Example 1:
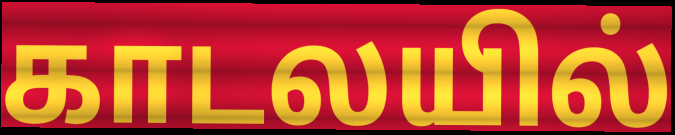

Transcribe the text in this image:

காடலயில்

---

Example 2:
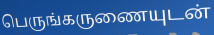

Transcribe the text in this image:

பெருங்கருணையுடன்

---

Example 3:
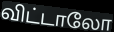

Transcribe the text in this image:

விட்டாலோ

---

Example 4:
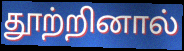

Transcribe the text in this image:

தூற்றினால்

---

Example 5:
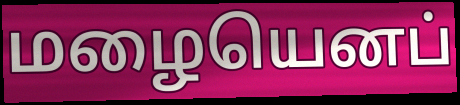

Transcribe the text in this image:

மழையெனப்